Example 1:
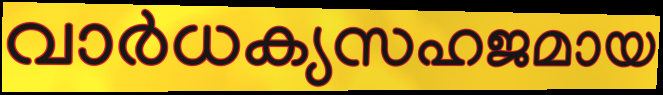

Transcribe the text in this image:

വാർധക്യസഹജമായ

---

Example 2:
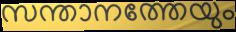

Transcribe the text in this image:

സന്താനത്തേയും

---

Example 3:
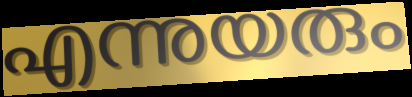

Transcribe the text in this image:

എന്നുയരും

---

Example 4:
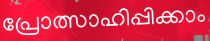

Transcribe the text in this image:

പ്രോത്സാഹിപ്പിക്കാം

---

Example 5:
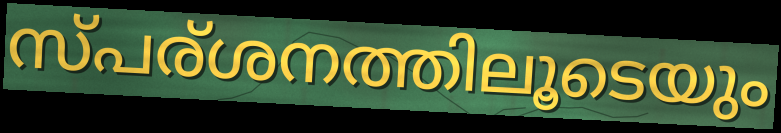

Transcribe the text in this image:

സ്പര്ശനത്തിലൂടെയും